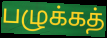
பழுக்கத்